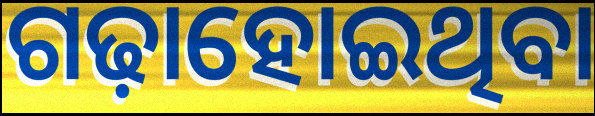
ଗଢ଼ାହୋଇଥିବା